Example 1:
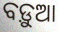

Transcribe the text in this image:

ବଡ଼ୁଆ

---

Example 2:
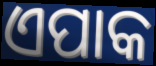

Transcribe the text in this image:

ଏପାକ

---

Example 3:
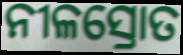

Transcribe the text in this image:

ନୀଳସ୍ରୋତ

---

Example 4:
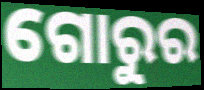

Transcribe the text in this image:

ଗୋରୁର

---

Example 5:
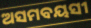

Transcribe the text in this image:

ଅସମବୟସୀ